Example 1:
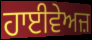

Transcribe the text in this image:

ਹਾਈਵੇਅਜ਼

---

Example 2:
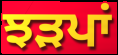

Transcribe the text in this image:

ਝੜਪਾਂ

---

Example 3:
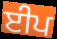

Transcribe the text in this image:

ਈਪ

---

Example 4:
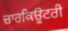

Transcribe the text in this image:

ਚਾਰਕਿਊਟਰੀ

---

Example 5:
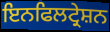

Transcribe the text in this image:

ਇਨਫਿਲਟ੍ਰੇਸ਼ਨ